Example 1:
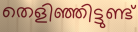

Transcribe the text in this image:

തെളിഞ്ഞിട്ടുണ്ട്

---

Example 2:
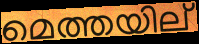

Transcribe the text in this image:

മെത്തയില്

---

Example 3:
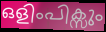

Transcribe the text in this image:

ഒളിംപിക്സും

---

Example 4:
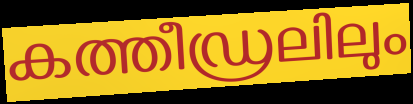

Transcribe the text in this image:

കത്തീഡ്രലിലും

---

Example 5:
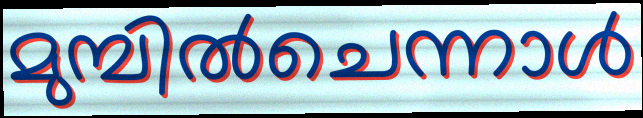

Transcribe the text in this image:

മുമ്പിൽചെന്നാൾ